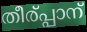
തീര്പ്പാന്